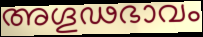
അഗൂഢഭാവം